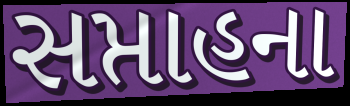
સપ્તાહના